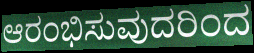
ಆರಂಭಿಸುವುದರಿಂದ